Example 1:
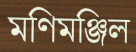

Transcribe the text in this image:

মণিমঞ্জিল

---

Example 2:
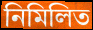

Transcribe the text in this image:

নিমিলিত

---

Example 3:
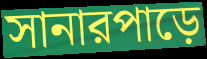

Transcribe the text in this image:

সানারপাড়ে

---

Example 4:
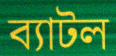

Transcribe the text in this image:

ব্যাটল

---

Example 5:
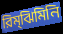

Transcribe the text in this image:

রিম্‌ঝিমিনি